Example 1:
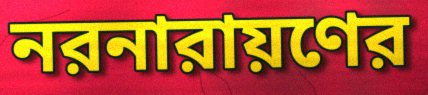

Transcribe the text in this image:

নরনারায়ণের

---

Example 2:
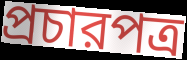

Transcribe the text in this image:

প্রচারপত্র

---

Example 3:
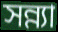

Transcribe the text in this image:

সন্ন্যা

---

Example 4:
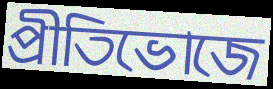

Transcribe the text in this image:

প্রীতিভোজে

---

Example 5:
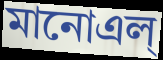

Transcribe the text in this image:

মানোএল্